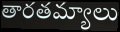
తారతమ్యాలు